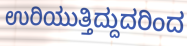
ಉರಿಯುತ್ತಿದ್ದುದರಿಂದ